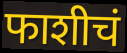
फाशीचं